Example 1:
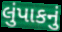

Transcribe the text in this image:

લુંપાકનું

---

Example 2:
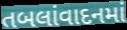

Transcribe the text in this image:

તબલાંવાદનમાં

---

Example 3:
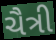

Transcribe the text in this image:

ચૈત્રી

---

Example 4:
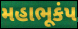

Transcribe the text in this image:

મહાભૂકંપ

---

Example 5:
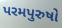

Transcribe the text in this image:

પરમપુરુષો